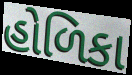
હોળિકા